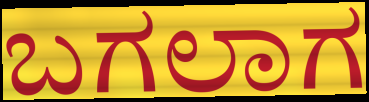
ಬಗಲಾಗ